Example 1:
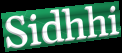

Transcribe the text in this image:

Sidhhi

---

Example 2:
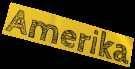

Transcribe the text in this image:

Amerika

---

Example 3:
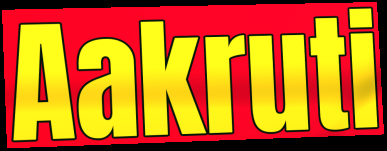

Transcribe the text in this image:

Aakruti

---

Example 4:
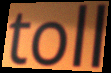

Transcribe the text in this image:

toll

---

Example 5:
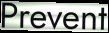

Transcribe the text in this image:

Prevent